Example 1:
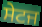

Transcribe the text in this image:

ਸੇਟਜ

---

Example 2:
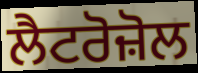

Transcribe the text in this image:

ਲੈਟਰੋਜ਼ੋਲ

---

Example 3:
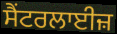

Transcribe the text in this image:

ਸੈਂਟਰਲਾਈਜ਼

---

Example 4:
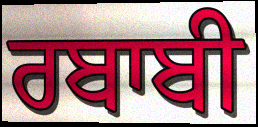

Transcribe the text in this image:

ਰਬਾਬੀ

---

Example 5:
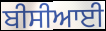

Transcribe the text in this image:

ਬੀਸੀਆਈ